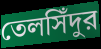
তেলসিঁদুর